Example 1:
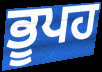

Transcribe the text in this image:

ਭੂਪਹ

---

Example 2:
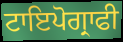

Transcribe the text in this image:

ਟਾਇਪੋਗ੍ਰਾਫੀ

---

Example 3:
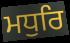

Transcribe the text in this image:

ਮਧੁਰਿ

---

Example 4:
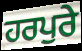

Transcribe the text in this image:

ਹਰਪੁਰੇ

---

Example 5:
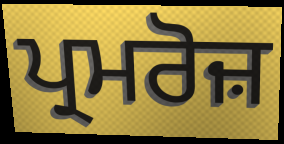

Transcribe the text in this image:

ਪ੍ਰਮਰੋਜ਼